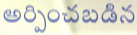
అర్పించబడిన